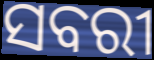
ସବରୀ